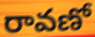
రావణో